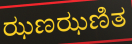
ಝಣಝಣಿತ